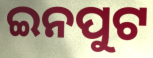
ଇନପୁଟ